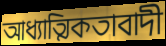
আধ্যাত্মিকতাবাদী